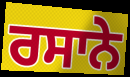
ਰਸਾਨੇ